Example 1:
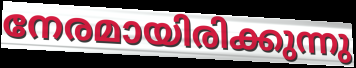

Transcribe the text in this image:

നേരമായിരിക്കുന്നു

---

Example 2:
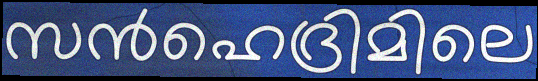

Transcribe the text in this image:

സൻഹെദ്രിമിലെ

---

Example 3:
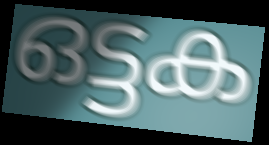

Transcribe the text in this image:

ഒട്ടക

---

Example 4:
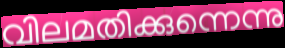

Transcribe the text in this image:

വിലമതിക്കുന്നെന്നു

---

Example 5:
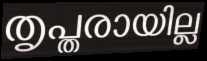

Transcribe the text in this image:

തൃപ്തരായില്ല